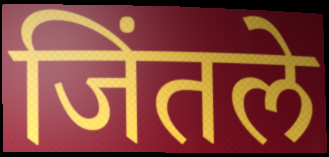
जिंतले